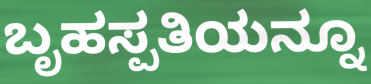
ಬೃಹಸ್ಪತಿಯನ್ನೂ